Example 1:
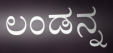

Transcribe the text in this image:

ಲಂಡನ್ನ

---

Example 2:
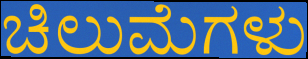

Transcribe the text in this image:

ಚಿಲುಮೆಗಳು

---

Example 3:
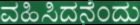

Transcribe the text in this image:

ವಹಿಸಿದನೆಂದು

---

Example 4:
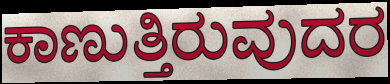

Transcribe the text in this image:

ಕಾಣುತ್ತಿರುವುದರ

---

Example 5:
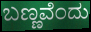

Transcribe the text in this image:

ಬಣ್ಣವೆಂದು